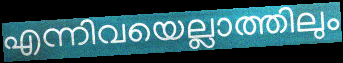
എന്നിവയെല്ലാത്തിലും